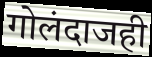
गोलंदाजही